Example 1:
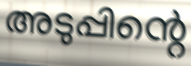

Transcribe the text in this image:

അടുപ്പിന്റെ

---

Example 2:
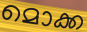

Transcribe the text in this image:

മൊക്ക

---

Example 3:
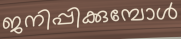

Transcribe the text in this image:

ജനിപ്പിക്കുമ്പോൾ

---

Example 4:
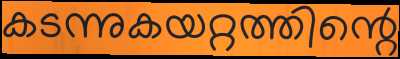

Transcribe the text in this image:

കടന്നുകയറ്റത്തിന്റെ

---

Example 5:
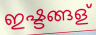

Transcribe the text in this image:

ഇഷ്ടങ്ങള്